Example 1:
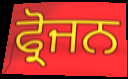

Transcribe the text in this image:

ਫ੍ਰੋਜਨ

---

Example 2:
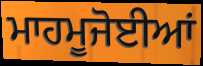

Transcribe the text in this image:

ਮਾਹਮੂਜੋਈਆਂ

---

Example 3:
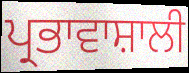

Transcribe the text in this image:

ਪ੍ਰਭਾਵਾਸ਼ਾਲੀ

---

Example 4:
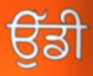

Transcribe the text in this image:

ਉੱਡੀ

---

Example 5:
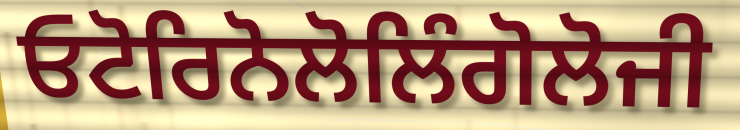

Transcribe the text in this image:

ਓਟੋਰਿਨੋਲੋਲਿੰਗੋਲੋਜੀ